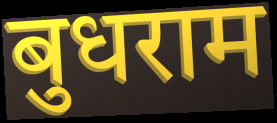
बुधराम